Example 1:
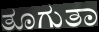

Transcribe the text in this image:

ತೂಗುತಾ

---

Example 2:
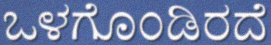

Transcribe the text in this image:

ಒಳಗೊಂಡಿರದೆ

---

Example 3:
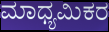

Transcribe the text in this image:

ಮಾಧ್ಯಮಿಕರ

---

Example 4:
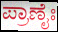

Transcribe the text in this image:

ಪ್ರಾಣೈಃ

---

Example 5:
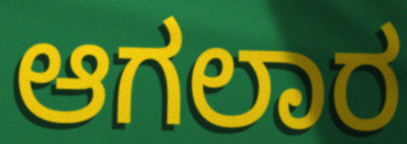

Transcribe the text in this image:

ಆಗಲಾರ